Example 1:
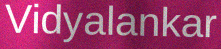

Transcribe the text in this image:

Vidyalankar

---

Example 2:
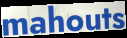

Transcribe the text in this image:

mahouts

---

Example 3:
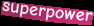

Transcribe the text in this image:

superpower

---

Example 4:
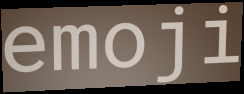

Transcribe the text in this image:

emoji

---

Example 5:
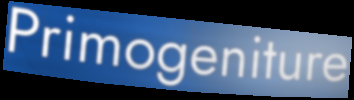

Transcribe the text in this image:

Primogeniture